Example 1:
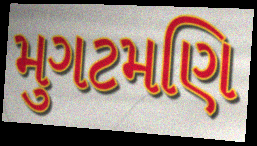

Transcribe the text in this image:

મુગટમણિ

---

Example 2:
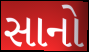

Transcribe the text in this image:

સાનો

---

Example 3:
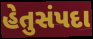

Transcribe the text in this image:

હેતુસંપદા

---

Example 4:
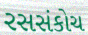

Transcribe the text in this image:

રસસંકોચ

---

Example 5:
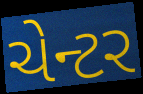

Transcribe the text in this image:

ચેન્ટર